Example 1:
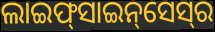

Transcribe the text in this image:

ଲାଇଫ୍‌ସାଇନ୍‌ସେସ୍‌ର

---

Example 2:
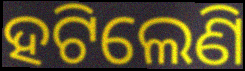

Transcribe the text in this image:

ହଟିଲେଣି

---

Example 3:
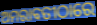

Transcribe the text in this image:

ଅମରାବତୀଠାରେ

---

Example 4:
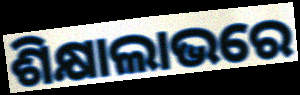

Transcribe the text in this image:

ଶିକ୍ଷାଲାଭରେ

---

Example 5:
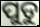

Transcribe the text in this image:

ପୁଡୁ